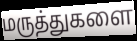
மருத்துகளை